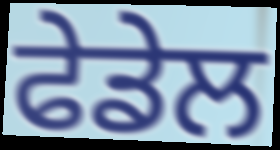
ਫੇਡੇਲ